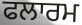
ਫਲਾਰਮ